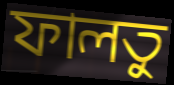
ফালতু